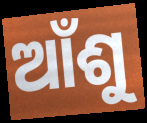
ଆଁଶୁ